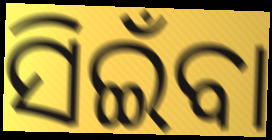
ସିଇଁବା